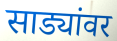
साड्यांवर